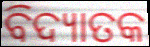
ବିଦ୍ୟାତକ